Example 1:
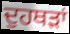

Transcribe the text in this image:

ਦੁਹਥੜਾਂ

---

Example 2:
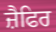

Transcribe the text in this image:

ਜ਼ੈਫਿਰ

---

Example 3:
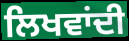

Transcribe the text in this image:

ਲਿਖਵਾਂਦੀ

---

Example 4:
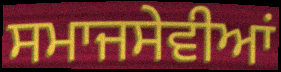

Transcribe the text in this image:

ਸਮਾਜਸੇਵੀਆਂ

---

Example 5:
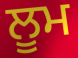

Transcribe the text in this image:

ਲੂਮ